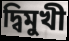
দ্বিমুখী